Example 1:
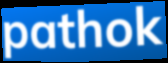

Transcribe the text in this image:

pathok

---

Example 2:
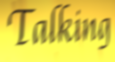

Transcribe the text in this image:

Talking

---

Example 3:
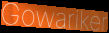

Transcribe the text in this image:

Gowariker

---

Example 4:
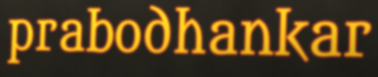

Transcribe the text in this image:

prabodhankar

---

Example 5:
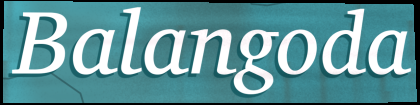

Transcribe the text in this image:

Balangoda